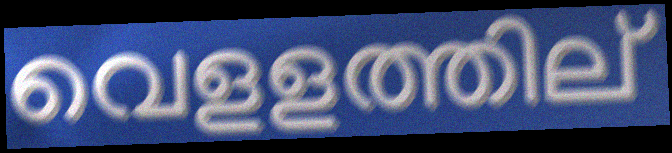
വെളളത്തില്